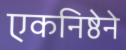
एकनिष्ठेने